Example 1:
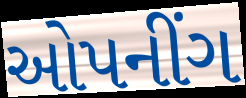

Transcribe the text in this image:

ઓપનીંગ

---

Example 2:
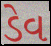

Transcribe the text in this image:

ડેવ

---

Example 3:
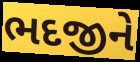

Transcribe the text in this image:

ભદજીને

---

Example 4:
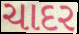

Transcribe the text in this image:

ચાદર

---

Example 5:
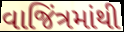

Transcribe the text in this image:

વાજિંત્રમાંથી